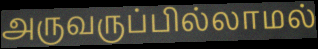
அருவருப்பில்லாமல்